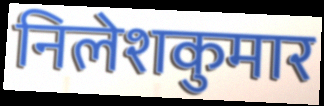
निलेशकुमार